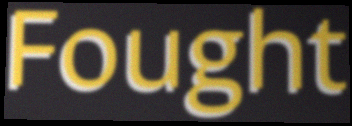
Fought